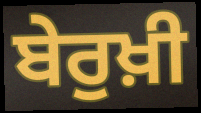
ਬੇਰੁਖ਼ੀ